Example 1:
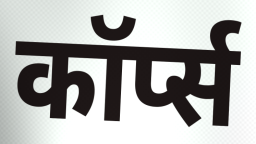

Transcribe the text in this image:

कॉर्प्स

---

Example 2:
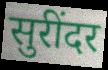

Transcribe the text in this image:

सुरींदर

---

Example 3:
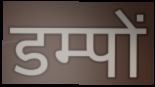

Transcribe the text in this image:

डम्पों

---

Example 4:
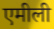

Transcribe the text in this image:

एमीली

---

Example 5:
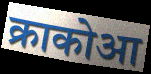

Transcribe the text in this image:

क्राकोआ